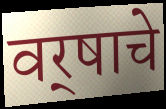
वर्षाचे